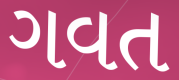
ગવત